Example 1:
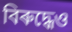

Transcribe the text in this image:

বিৰুদ্ধেও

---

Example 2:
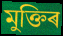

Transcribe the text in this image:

মুক্তিৰ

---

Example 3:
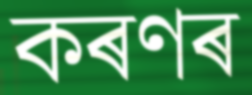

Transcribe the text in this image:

কৰণৰ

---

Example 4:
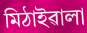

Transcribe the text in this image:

মিঠাইৱালা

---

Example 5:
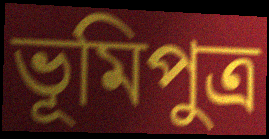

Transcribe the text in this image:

ভূমিপুত্ৰ